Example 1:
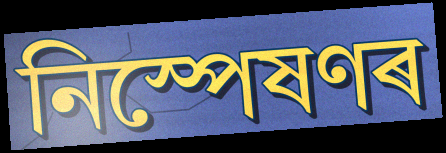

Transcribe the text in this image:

নিস্পেষণৰ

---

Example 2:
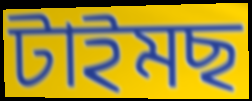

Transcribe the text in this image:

টাইমছ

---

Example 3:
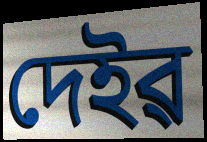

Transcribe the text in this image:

দেইৱ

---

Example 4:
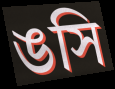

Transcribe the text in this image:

ঙসি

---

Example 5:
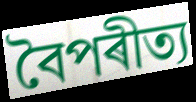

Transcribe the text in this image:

বৈপৰীত্য